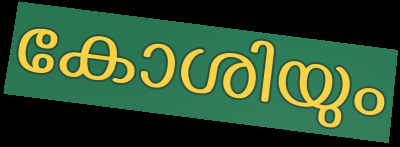
കോശിയും